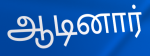
ஆடினார்